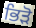
ਭਿੜੋ